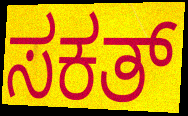
ಸಕತ್